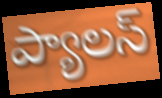
ప్యాలస్